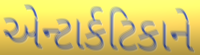
એન્ટાર્કટિકાને